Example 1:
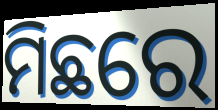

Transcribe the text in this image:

ମିଛରେ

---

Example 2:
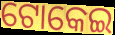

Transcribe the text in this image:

ଟୋକେଇ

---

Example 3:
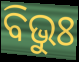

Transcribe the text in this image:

ବିଭୁଃ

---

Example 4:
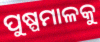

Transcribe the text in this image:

ପୁଷ୍ପମାଳକୁ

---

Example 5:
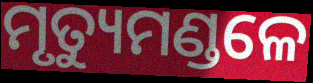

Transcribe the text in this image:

ମୃତ୍ୟୁମଣ୍ଡଳେ